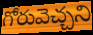
గోరువెచ్చని